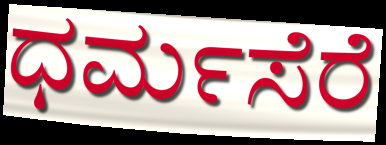
ಧರ್ಮಸೆರೆ